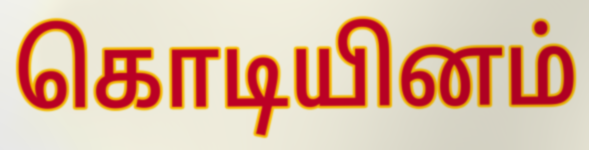
கொடியினம்